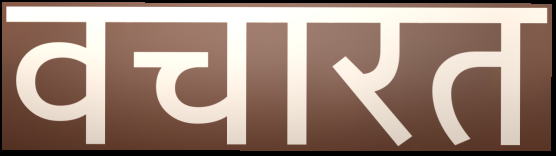
वचारत